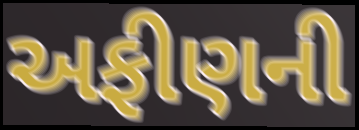
અફીણની